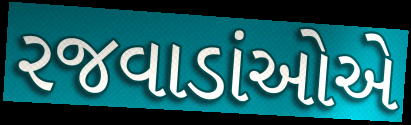
રજવાડાંઓએ